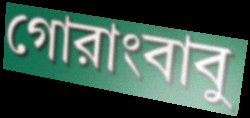
গোরাংবাবু